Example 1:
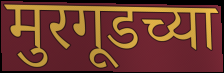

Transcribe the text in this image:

मुरगूडच्या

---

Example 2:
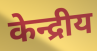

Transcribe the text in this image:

केन्द्रीय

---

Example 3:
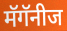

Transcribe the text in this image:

मॅगॅनीज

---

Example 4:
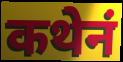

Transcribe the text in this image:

कथेनं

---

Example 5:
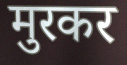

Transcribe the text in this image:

मुरकर